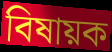
বিষায়ক